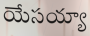
యేసయ్యా